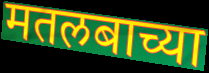
मतलबाच्या